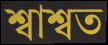
শ্বাশ্বত